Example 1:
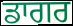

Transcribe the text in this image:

ਡਾਗਰ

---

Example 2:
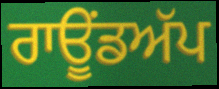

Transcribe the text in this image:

ਰਾਊਂਡਅੱਪ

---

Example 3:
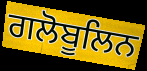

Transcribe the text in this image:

ਗਲੋਬੂਲਿਨ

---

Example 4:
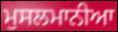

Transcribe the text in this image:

ਮੁਸਲਮਾਨੀਆ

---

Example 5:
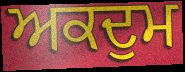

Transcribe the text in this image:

ਅਕਦੁਮ